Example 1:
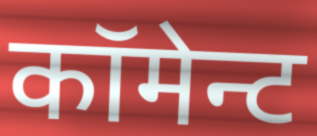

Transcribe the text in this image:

कॉमेन्ट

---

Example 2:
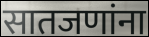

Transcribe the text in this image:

सातजणांना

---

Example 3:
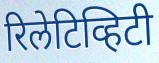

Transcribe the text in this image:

रिलेटिव्हिटी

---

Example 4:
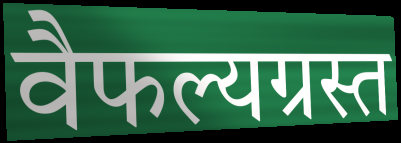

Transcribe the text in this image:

वैफल्यग्रस्त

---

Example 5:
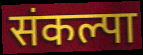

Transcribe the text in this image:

संकल्पा